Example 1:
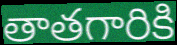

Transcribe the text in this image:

తాతగారికి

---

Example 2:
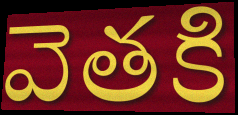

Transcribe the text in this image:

వెతకి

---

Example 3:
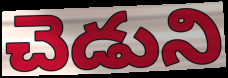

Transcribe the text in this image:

చెడుని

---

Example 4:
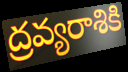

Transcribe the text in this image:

ద్రవ్యరాశికి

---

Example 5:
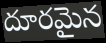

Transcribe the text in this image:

దూరమైన